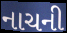
નાચની